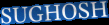
SUGHOSH